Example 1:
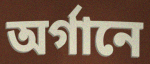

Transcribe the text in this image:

অর্গানে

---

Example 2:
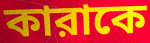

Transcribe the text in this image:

কারাকে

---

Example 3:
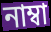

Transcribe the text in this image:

নাম্বা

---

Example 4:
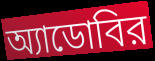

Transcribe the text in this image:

অ্যাডোবির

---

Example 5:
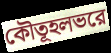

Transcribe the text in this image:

কৌতূহলভরে